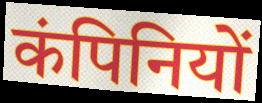
कंपिनियों